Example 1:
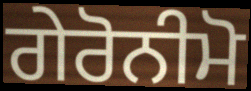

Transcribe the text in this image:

ਗੇਰੋਨੀਮੋ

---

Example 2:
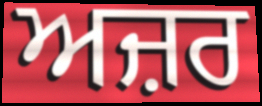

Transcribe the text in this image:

ਅਜ਼ਰ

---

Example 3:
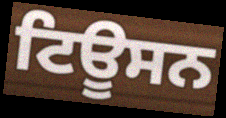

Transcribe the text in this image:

ਟਿਊਸਨ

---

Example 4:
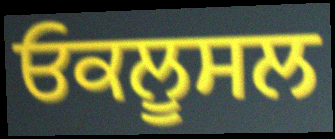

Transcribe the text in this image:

ਓਕਲੂਸਲ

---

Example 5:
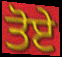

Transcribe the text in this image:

ਤੋਏ